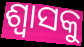
ଶ୍ଵାସକୁ